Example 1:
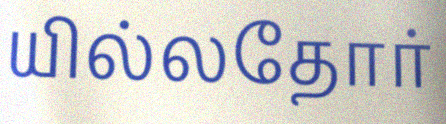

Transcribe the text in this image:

யில்லதோர்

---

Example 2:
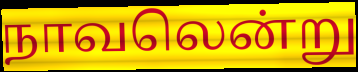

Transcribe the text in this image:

நாவலென்று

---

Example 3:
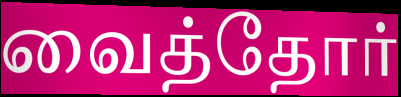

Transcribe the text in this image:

வைத்தோர்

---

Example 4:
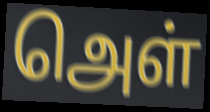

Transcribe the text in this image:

அெள்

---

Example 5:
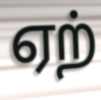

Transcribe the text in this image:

ஏற்